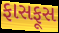
ફાસફૂસ